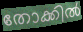
തോക്കിൽ